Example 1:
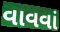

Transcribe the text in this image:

વાવવાં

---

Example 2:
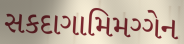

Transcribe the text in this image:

સકદાગામિમગ્ગેન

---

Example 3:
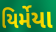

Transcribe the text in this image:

યિર્મેયા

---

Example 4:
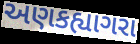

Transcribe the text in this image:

અણકહ્યાગરા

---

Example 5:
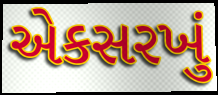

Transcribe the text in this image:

એકસરખું